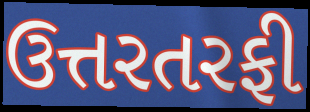
ઉત્તરતરફી